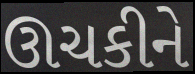
ઊચકીને